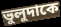
ভুলুদাকে